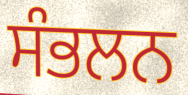
ਸੰਭਲਨ